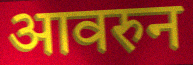
आवरुन